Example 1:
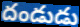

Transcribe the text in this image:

దండుడు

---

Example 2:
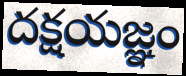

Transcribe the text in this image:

దక్షయజ్ఞం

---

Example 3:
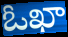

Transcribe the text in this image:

ఓఖా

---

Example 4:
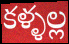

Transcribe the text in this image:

కళ్ళల్ల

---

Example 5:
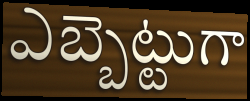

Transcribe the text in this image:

ఎబ్బెట్టుగా